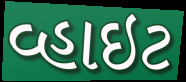
વ્હાઇટ